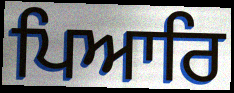
ਪਿਆਰਿ